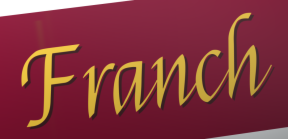
Franch